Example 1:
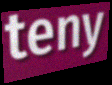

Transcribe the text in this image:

teny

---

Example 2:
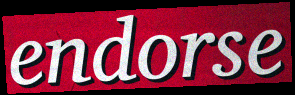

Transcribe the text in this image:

endorse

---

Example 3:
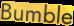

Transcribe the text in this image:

Bumble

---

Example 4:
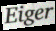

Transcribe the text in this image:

Eiger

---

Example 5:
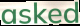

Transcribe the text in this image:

asked